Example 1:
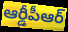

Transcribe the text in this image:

ఆర్డీపీఆర్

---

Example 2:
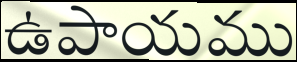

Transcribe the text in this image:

ఉపాయము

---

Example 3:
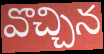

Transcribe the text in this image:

వొచ్చిన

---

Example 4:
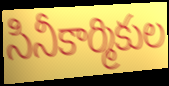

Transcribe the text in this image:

సినీకార్మికుల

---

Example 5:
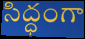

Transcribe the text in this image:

సిద్ధంగా